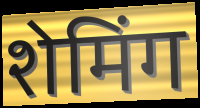
शेमिंग